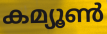
കമ്യൂൺ